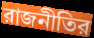
রাজনীতির